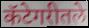
कॅटेगरीतले